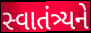
સ્વાતંત્ર્યને